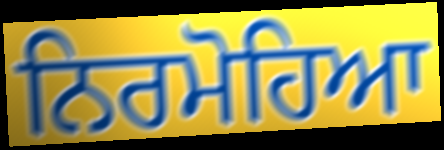
ਨਿਰਮੋਹਿਆ